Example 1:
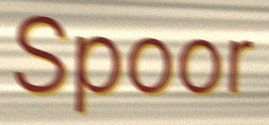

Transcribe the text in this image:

Spoor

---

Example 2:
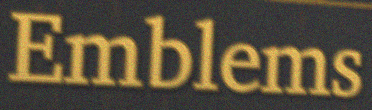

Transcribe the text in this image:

Emblems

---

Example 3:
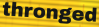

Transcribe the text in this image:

thronged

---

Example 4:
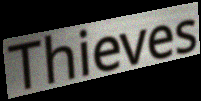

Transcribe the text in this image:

Thieves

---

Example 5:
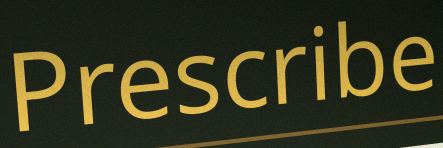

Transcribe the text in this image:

Prescribe